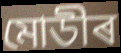
মোডীৰ